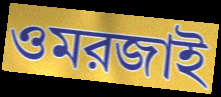
ওমরজাই